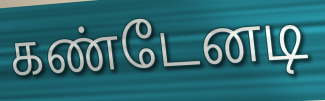
கண்டேனடி